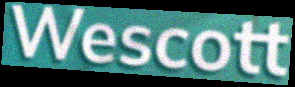
Wescott